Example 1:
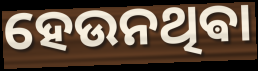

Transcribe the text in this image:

ହେଉନଥିଵା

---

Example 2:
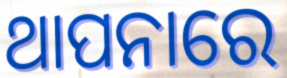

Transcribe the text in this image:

ଥାପନାରେ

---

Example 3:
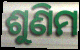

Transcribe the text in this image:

ଶୁଣିମ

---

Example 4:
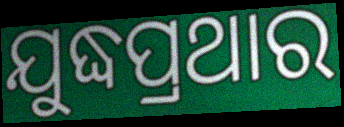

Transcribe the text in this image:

ଯୁଦ୍ଧପ୍ରଥାର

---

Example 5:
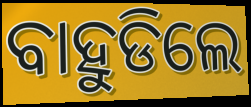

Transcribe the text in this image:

ବାହୁଡିଲେ